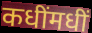
कधींमधीं